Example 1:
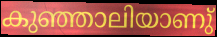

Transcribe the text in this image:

കുഞ്ഞാലിയാണു്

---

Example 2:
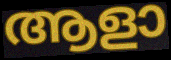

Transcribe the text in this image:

ആളാ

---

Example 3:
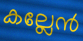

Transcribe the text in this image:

കല്ലേൻ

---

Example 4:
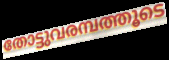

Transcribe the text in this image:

തോട്ടുവരമ്പത്തൂടെ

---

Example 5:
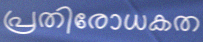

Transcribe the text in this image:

പ്രതിരോധകത